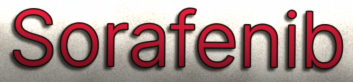
Sorafenib